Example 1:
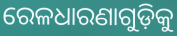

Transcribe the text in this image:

ରେଳଧାରଣାଗୁଡ଼ିକୁ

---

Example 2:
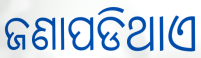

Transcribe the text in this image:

ଜଣାପଡିଥାଏ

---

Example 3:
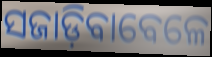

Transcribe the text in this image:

ସଜାଡ଼ିବାବେଳେ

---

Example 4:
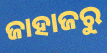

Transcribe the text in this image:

ଜାହାଜରୁ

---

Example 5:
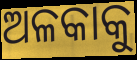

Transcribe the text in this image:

ଅଳକାକୁ